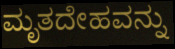
ಮೃತದೇಹವನ್ನು